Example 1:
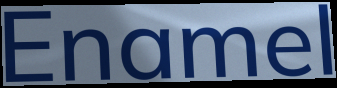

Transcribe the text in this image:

Enamel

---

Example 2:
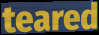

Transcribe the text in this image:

teared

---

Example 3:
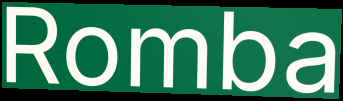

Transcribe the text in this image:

Romba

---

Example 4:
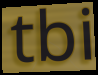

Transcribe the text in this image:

tbi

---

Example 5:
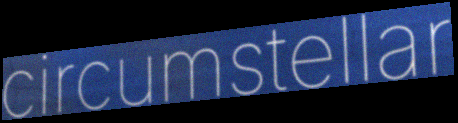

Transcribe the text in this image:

circumstellar